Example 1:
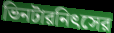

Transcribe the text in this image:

ভিনটারনিৎসের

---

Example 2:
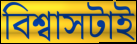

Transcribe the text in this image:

বিশ্বাসটাই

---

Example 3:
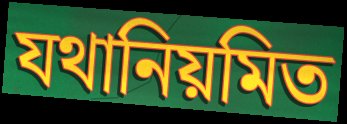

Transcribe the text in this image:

যথানিয়মিত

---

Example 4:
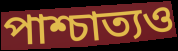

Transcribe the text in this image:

পাশ্চাত্যও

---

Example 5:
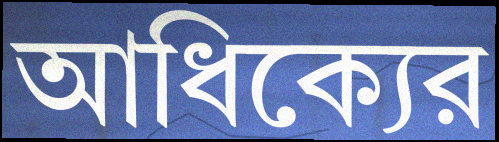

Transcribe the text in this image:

আধিক্যের